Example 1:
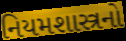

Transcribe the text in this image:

નિયમશાસ્ત્રનો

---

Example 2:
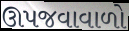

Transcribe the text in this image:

ઊપજવાવાળો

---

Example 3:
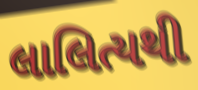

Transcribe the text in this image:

લાલિત્યથી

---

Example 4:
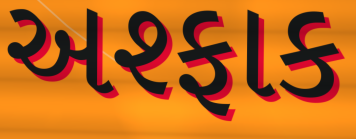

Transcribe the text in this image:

અશ્ફાક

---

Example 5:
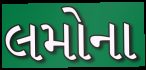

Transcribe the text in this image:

લમોના